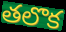
తలొక